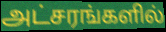
அட்சரங்களில்